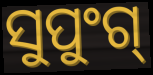
ସୁପୁଂଗ୍